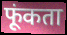
फूंकता